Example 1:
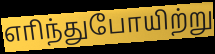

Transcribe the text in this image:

எரிந்துபோயிற்று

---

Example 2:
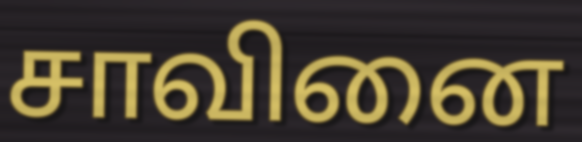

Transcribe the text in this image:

சாவினை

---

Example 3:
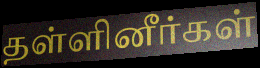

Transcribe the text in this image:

தள்ளினீர்கள்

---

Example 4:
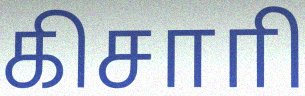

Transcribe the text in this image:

கிசாரி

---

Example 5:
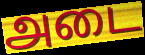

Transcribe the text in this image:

அடை